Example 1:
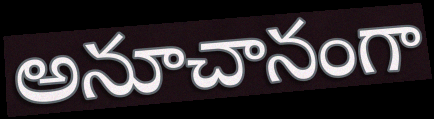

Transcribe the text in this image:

అనూచానంగా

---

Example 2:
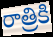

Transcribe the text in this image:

రాత్రికి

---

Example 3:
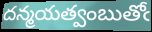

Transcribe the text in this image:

దన్మయత్వంబుతోఁ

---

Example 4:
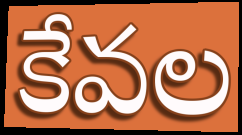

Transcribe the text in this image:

కేవల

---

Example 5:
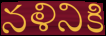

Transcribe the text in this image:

నళినికి